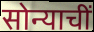
सोन्याचीं